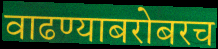
वाढण्याबरोबरच